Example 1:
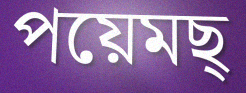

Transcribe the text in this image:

পয়েমছ্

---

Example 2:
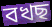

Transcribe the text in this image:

বখছ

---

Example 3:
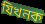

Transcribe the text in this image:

যিখনক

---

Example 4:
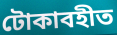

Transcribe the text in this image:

টোকাবহীত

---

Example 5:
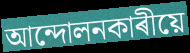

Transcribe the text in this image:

আন্দোলনকাৰীয়ে